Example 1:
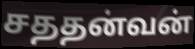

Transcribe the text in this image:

சததன்வன்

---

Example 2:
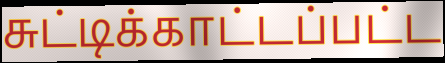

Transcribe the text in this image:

சுட்டிக்காட்டப்பட்ட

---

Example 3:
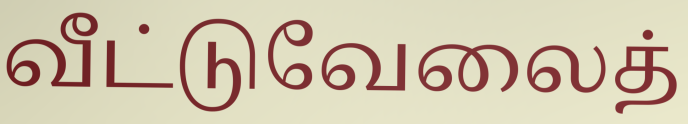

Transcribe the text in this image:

வீட்டுவேலைத்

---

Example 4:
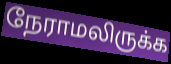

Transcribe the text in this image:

நேராமலிருக்க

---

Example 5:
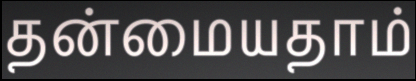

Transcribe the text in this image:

தன்மையதாம்